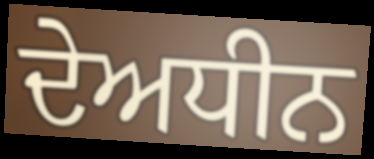
ਦੇਅਧੀਨ